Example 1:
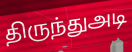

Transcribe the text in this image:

திருந்துஅடி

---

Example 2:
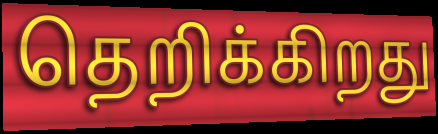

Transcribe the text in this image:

தெறிக்கிறது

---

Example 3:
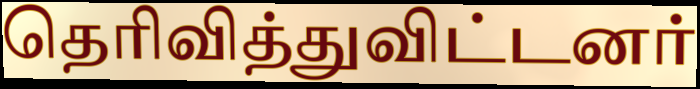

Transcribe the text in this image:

தெரிவித்துவிட்டனர்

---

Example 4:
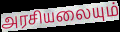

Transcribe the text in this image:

அரசியலையும்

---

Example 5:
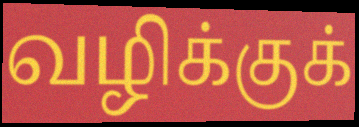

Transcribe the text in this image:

வழிக்குக்